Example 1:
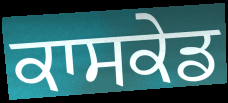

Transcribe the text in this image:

ਕਾਸਕੇਡ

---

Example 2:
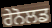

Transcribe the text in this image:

ਰੇਨੋਲਡ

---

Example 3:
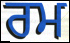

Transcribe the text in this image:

ਰਮ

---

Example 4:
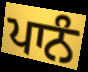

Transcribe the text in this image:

ਪਾਨੰ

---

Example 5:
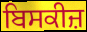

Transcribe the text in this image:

ਬਿਸਕੀਜ਼